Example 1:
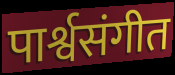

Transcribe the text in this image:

पार्श्वसंगीत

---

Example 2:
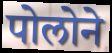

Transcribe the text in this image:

पोलोने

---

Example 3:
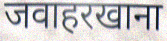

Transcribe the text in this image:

जवाहरखाना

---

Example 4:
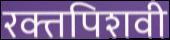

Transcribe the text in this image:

रक्तपिशवी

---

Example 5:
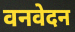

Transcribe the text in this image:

वनवेदन